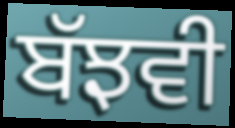
ਬੱਝਵੀ